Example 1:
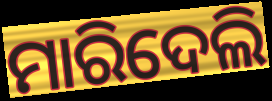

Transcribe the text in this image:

ମାରିଦେଲି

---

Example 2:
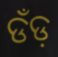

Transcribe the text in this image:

ଡଁଡ଼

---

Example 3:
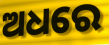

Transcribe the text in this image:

ଅଧରେ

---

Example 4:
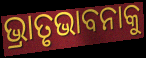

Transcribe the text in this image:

ଭ୍ରାତୃଭାବନାକୁ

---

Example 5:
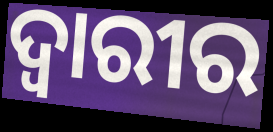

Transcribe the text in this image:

ଦ୍ୱାରୀର